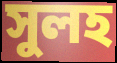
সুলহ